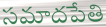
సమాదపేతి